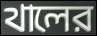
থালের